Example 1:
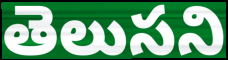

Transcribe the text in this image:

తెలుసని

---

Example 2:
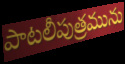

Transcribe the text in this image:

పాటలీపుత్రమును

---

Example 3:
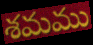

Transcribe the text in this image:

శమము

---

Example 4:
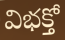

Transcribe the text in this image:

విభక్తో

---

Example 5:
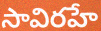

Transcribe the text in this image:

సావిరహే